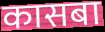
कासबा